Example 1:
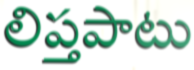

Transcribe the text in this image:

లిప్తపాటు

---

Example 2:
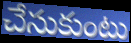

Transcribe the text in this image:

చేసుకుంటు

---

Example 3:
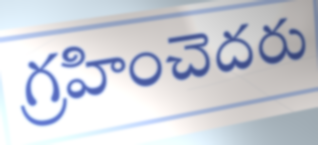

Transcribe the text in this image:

గ్రహించెదరు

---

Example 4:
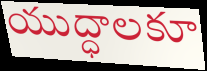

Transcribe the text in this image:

యుద్ధాలకూ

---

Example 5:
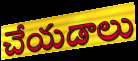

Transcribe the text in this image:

చేయడాలు